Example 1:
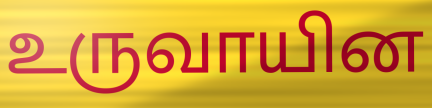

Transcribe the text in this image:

உருவாயின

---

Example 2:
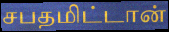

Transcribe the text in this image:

சபதமிட்டான்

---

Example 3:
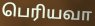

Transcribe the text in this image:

பெரியவா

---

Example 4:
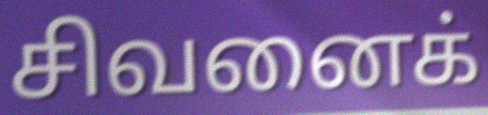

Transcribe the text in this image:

சிவனைக்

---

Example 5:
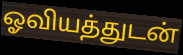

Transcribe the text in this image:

ஓவியத்துடன்